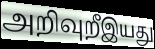
அறிவுறீஇயது